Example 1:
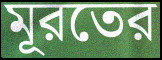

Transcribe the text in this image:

মূরতের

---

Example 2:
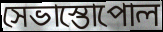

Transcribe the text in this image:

সেভাস্তোপোল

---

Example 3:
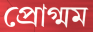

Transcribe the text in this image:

প্রোগ্মম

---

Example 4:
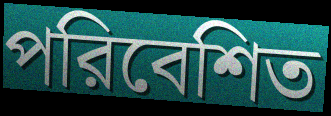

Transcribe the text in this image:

পরিবেশিত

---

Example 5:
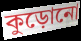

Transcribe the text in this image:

কুড়োনো